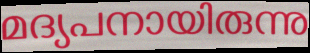
മദ്യപനായിരുന്നു